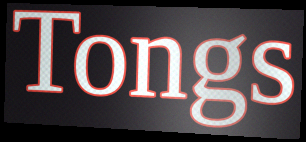
Tongs